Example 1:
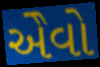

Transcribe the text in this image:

એેવો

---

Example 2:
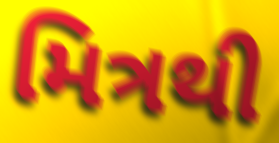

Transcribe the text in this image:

મિત્રથી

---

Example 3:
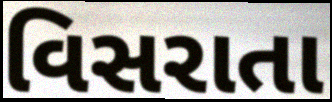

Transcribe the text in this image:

વિસરાતા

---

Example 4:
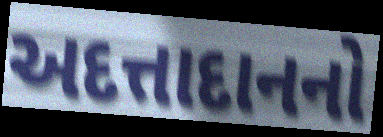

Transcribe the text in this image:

અદત્તાદાનનો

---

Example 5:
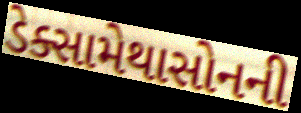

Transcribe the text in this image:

ડેક્સામેથાસોનની